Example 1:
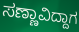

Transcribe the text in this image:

ಸಣ್ಣಾವಿದ್ದಾಗ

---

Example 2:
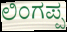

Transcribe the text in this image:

ಲಿಂಗಪ್ಪ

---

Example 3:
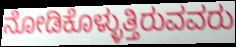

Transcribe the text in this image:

ನೋಡಿಕೊಳ್ಳುತ್ತಿರುವವರು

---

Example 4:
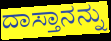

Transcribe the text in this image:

ದಾಸ್ತಾನನ್ನು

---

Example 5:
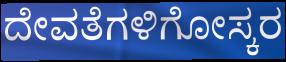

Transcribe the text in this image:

ದೇವತೆಗಳಿಗೋಸ್ಕರ